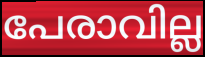
പേരാവില്ല